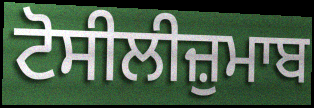
ਟੋਸੀਲੀਜ਼ੁਮਾਬ